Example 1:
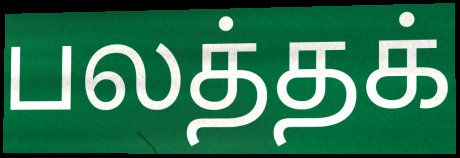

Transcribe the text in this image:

பலத்தக்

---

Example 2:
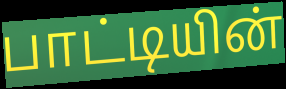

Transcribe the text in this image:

பாட்டியின்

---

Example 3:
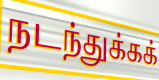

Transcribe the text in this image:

நடந்துக்கக்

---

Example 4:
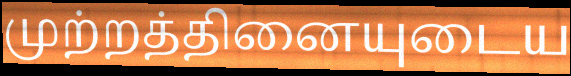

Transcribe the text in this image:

முற்றத்தினையுடைய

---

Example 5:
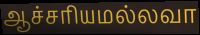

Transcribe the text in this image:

ஆச்சரியமல்லவா